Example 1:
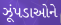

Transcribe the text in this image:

ઝૂંપડાઓને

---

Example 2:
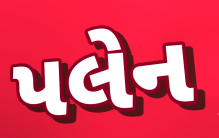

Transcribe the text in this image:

પલેન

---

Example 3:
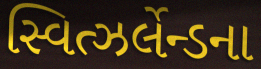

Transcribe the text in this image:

સ્વિત્ઝર્લેન્ડના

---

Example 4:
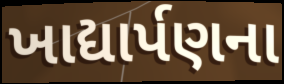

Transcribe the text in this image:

ખાદ્યાર્પણના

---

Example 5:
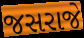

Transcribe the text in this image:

જસરાજે